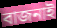
বাজনাই